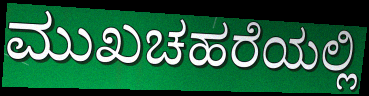
ಮುಖಚಹರೆಯಲ್ಲಿ